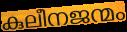
കുലീനജന്മം